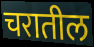
चरातील